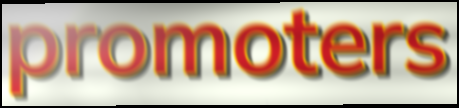
promoters